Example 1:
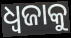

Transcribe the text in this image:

ଧ୍ୱଜାକୁ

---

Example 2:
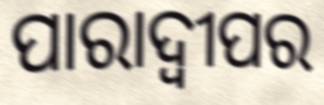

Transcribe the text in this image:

ପାରାଦ୍ବୀପର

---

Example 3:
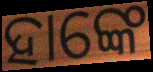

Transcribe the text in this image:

ହାଙ୍କେ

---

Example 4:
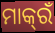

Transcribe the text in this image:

ମାକ୍‌ରଁ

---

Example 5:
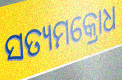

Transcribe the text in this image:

ସତ୍ୟମକ୍ରୋଧ